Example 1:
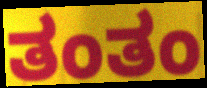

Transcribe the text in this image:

ತಂತಂ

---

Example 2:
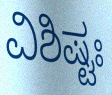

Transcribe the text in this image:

ವಿಶಿಷ್ಟಃ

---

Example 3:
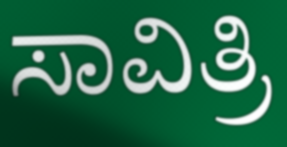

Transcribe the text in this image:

ಸಾವಿತ್ರಿ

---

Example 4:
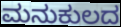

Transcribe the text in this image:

ಮನುಕುಲದ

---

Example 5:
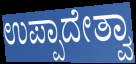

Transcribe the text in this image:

ಉಪ್ಪಾದೇತ್ವಾ